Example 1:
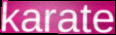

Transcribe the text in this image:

karate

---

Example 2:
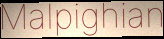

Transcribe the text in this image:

Malpighian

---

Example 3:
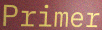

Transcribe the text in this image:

Primer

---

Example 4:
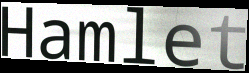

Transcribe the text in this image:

Hamlet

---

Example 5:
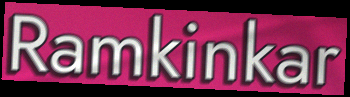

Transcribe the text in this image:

Ramkinkar